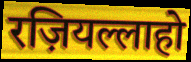
रज़ियल्लाहो